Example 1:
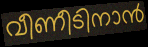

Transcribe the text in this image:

വീണീടിനാൻ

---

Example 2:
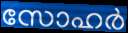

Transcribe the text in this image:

സോഹർ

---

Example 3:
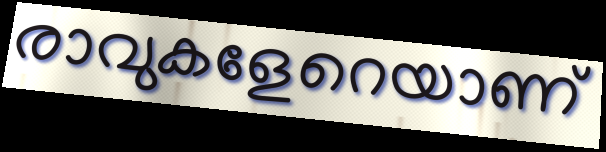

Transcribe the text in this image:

രാവുകളേറെയാണ്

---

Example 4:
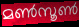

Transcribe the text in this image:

മൺസൂൺ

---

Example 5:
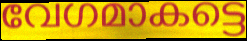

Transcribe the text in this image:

വേഗമാകട്ടെ